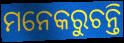
ମନେକରୁଚନ୍ତି